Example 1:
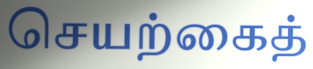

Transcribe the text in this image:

செயற்கைத்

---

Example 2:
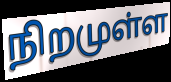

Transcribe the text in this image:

நிறமுள்ள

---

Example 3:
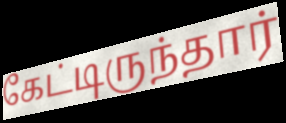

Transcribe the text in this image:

கேட்டிருந்தார்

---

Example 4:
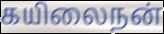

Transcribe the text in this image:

கயிலைநன்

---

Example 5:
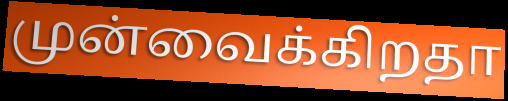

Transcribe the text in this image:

முன்வைக்கிறதா